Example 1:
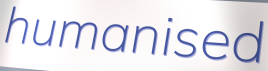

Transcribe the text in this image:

humanised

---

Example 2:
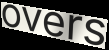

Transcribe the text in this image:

overs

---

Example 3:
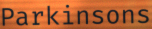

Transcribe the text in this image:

Parkinsons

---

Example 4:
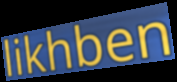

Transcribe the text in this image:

likhben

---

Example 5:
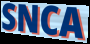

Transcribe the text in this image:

SNCA